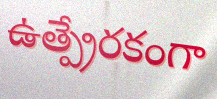
ఉత్ప్రేరకంగా